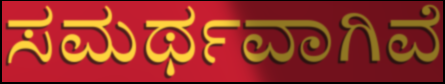
ಸಮರ್ಥವಾಗಿವೆ